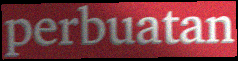
perbuatan